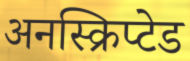
अनस्क्रिप्टेड